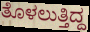
ತೊಳಲುತ್ತಿದ್ದ